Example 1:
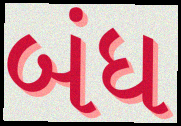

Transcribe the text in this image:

બંધ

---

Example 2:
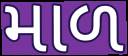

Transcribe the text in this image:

માળ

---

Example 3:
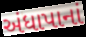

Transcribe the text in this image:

અંધાપાનાં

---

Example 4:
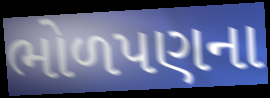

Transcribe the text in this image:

ભોળપણના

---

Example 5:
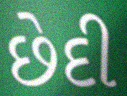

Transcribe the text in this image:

છેદી